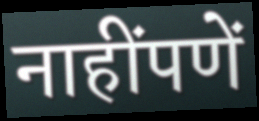
नाहींपणें